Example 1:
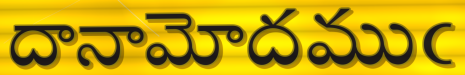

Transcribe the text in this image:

దానామోదముఁ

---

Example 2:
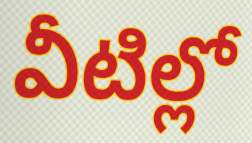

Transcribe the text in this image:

వీటిల్లో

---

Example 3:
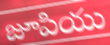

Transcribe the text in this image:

జూపియు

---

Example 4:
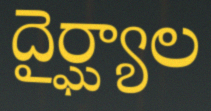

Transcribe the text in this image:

దైర్ఘ్యాల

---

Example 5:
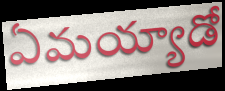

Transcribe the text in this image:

ఏమయ్యాడో